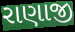
રાણાજી